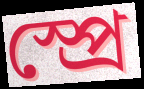
স্প্রে